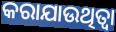
କରାଯାଉଥିତ୍ବା